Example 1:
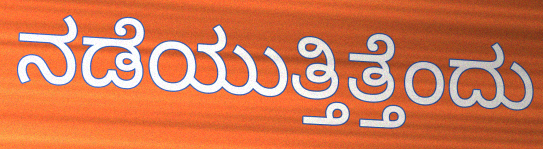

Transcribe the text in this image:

ನಡೆಯುತ್ತಿತ್ತೆಂದು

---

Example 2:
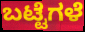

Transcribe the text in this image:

ಬಟ್ಟೆಗಳೆ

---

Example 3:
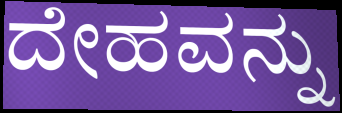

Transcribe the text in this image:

ದೇಹವನ್ನು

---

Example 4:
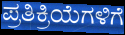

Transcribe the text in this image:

ಪ್ರತಿಕ್ರಿಯೆಗಳಿಗೆ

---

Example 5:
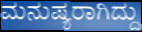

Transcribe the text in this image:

ಮನುಷ್ಯರಾಗಿದ್ದು